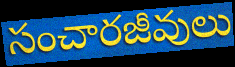
సంచారజీవులు